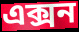
এক্সন